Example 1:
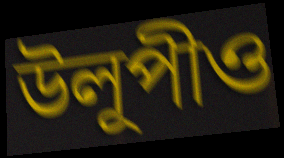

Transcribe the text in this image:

উলূপীও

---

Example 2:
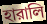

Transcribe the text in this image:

হারালি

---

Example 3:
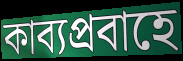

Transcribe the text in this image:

কাব্যপ্রবাহে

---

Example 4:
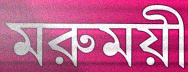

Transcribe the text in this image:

মরুময়ী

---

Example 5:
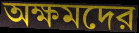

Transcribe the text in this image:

অক্ষমদের